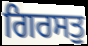
ਗਿਰਸਤੁ